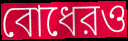
বোধেরও